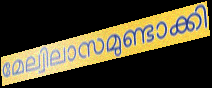
മേല്വിലാസമുണ്ടാക്കി